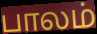
பாலம்